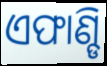
ଏଫାଣ୍ଡି